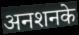
अनशनके